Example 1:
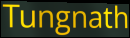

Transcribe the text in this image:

Tungnath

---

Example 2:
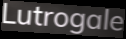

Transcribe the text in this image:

Lutrogale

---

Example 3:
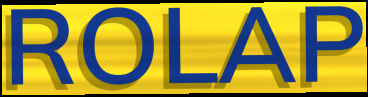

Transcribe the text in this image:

ROLAP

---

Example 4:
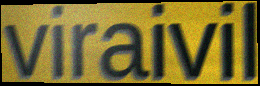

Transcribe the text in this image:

viraivil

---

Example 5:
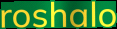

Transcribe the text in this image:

roshalo